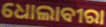
ଧୋଲାବୀରା